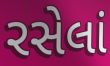
રસેલાં